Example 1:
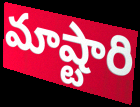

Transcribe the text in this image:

మాష్టారి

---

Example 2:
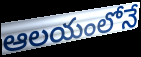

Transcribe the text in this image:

ఆలయంలోనే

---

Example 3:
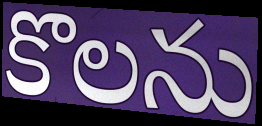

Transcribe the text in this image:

కొలను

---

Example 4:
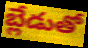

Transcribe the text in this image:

బ్లేడుతో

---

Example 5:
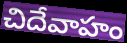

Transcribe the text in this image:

చిదేవాహం